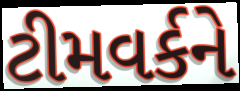
ટીમવર્કને